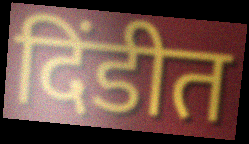
दिंडीत